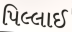
પિલ્લાઈ